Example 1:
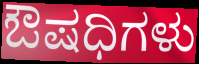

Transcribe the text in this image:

ಔಷಧಿಗಳು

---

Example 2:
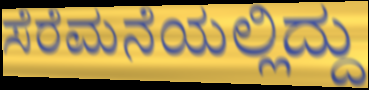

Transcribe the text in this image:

ಸೆರೆಮನೆಯಲ್ಲಿದ್ದು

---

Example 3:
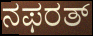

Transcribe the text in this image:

ನಫರತ್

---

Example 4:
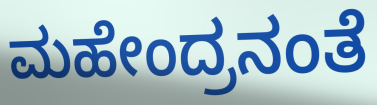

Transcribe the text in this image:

ಮಹೇಂದ್ರನಂತೆ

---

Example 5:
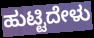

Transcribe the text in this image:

ಹುಟ್ಟಿದೇಳು